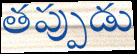
తప్పుడు